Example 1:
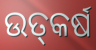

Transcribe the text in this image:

ଉତ୍‌କର୍ଷ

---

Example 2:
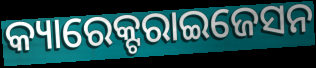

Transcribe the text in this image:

କ୍ୟାରେକ୍ଟରାଇଜେସନ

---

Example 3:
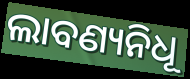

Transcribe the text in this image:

ଲାବଣ୍ୟନିଧୂ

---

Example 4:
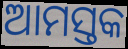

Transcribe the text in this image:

ଆମସ୍ତକ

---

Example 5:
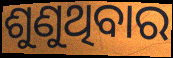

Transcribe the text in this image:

ଶୁଣୁଥିବାର